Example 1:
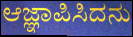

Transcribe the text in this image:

ಆಜ್ಞಾಪಿಸಿದನು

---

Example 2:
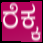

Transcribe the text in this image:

ರೆಕ್ಕ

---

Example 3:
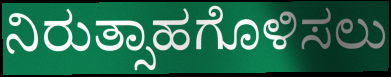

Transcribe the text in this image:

ನಿರುತ್ಸಾಹಗೊಳಿಸಲು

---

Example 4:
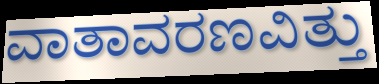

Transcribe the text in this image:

ವಾತಾವರಣವಿತ್ತು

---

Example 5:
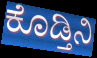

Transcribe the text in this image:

ಕೊಡ್ತಿನಿ